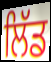
ਲਿੱਡ